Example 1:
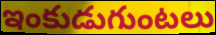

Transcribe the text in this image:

ఇంకుడుగుంటలు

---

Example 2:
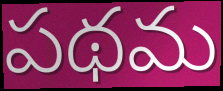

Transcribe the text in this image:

పథమ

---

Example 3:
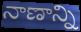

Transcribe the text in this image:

నాణాన్ని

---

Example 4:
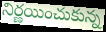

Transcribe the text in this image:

నిర్ణయించుకున్న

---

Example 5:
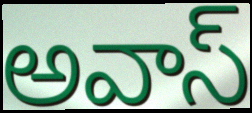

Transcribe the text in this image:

అవాస్